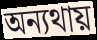
অন্যথায়